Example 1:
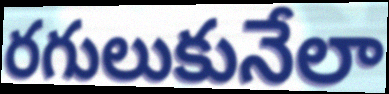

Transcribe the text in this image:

రగులుకునేలా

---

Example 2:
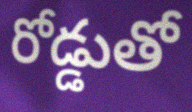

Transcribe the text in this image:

రోడ్డుతో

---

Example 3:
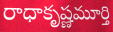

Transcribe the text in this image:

రాధాకృష్ణమూర్తి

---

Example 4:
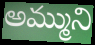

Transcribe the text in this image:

అమ్ముని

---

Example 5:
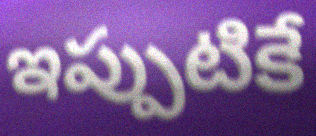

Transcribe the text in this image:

ఇప్పుటికే